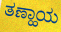
ತಣ್ಹಾಯ